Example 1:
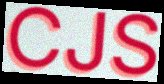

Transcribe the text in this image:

CJS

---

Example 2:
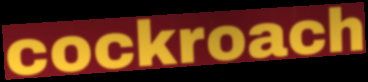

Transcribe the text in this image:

cockroach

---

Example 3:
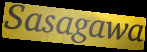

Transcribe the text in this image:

Sasagawa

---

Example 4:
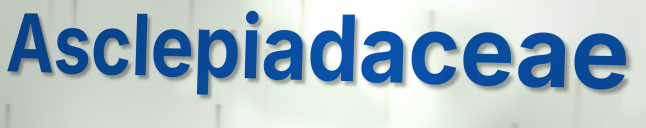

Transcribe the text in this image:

Asclepiadaceae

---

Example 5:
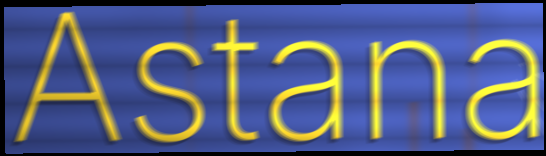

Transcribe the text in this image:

Astana